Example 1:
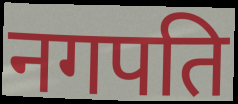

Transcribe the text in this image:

नगपति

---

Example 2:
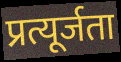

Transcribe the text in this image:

प्रत्यूर्जता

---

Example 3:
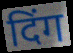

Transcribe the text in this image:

दिंग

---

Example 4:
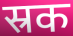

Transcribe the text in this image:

स्रक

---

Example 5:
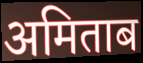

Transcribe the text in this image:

अमिताब